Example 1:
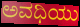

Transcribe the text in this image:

ಅವಧಿಯು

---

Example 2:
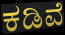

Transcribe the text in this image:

ಕಡಿವೆ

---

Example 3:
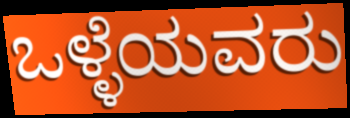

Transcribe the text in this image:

ಒಳ್ಳೆಯವರು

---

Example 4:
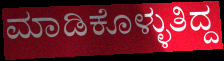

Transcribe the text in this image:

ಮಾಡಿಕೊಳ್ಳುತಿದ್ದ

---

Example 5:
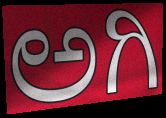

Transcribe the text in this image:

ಅಗಿ